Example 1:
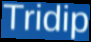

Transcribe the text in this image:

Tridip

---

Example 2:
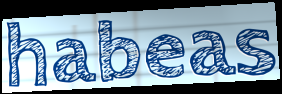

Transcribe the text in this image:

habeas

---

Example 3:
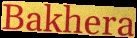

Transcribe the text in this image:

Bakhera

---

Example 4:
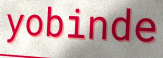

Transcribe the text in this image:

yobinde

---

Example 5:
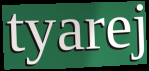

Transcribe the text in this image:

tyarej